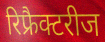
रिफ्रैक्टरीज